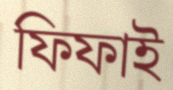
ফিফাই